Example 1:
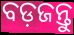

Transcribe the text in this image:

ବଡ଼ଜନ୍ତୁ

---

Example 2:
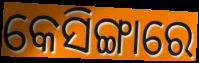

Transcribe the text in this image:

କେସିଙ୍ଗାରେ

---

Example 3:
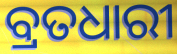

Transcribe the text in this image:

ବ୍ରତଧାରୀ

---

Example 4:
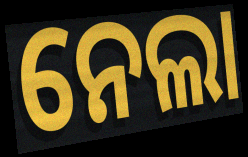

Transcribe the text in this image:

ନେଲା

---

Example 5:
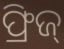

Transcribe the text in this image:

ଫ୍ରିଜ୍